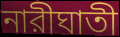
নারীঘাতী